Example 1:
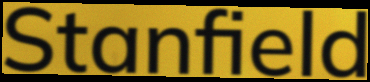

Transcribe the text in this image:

Stanfield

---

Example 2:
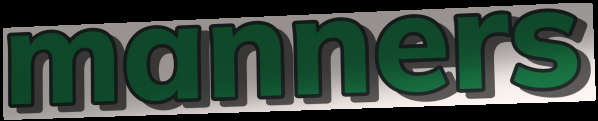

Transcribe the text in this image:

manners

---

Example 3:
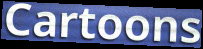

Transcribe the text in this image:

Cartoons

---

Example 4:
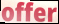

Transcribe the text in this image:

offer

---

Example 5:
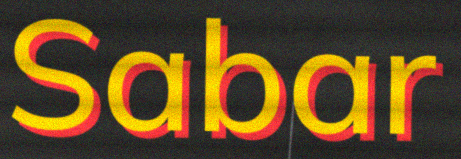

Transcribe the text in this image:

Sabar